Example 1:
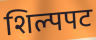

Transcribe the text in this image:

शिल्पपट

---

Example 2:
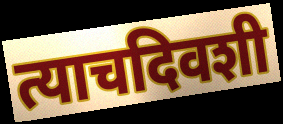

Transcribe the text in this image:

त्याचदिवशी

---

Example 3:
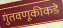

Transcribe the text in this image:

गुंतवणूकीकडे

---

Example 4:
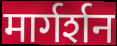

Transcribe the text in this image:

मार्गर्शन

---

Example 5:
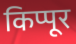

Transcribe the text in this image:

किप्पूर